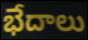
భేదాలు